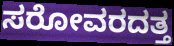
ಸರೋವರದತ್ತ